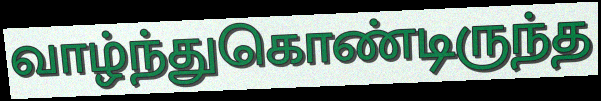
வாழ்ந்துகொண்டிருந்த